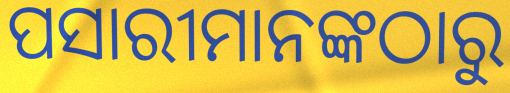
ପସାରୀମାନଙ୍କଠାରୁ